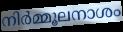
നിർമ്മൂലനാശം